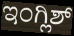
ಇಂಗ್ಲಿಶ್